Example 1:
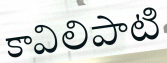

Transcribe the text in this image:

కావిలిపాటి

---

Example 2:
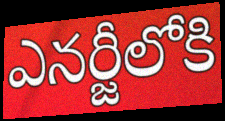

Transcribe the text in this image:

ఎనర్జీలోకి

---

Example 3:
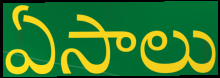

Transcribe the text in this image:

ఏసాలు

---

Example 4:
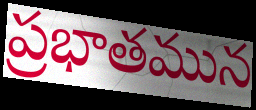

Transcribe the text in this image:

ప్రభాతమున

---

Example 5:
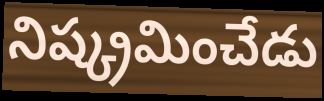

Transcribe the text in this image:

నిష్క్రమించేడు